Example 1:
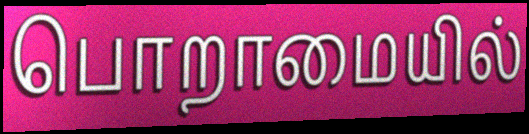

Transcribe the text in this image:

பொறாமையில்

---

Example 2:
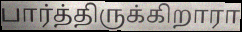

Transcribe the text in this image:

பார்த்திருக்கிறாரா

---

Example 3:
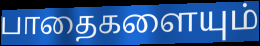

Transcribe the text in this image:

பாதைகளையும்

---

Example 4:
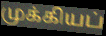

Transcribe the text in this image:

முக்கியப்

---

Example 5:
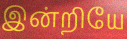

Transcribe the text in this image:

இன்றியே